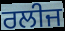
ਰਲੀਜ